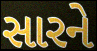
સારને